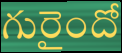
గురైందో